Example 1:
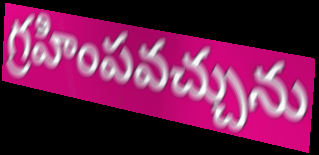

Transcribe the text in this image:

గ్రహింపవచ్చును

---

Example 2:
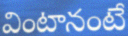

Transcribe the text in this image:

వింటానంటే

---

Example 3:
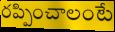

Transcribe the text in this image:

రప్పించాలంటే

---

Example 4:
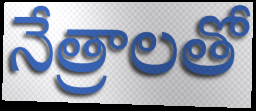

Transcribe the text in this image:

నేత్రాలతో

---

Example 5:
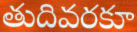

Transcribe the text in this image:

తుదివరకూ